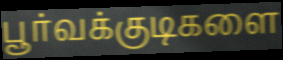
பூர்வக்குடிகளை